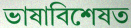
ভাষাবিশেষত